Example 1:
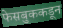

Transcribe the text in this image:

फेसबुककडून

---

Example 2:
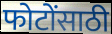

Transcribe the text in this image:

फोटोंसाठी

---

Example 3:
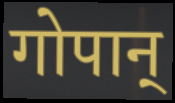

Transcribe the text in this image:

गोपान्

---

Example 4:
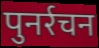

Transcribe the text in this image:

पुनर्रचन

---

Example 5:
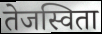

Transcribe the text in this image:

तेजस्विता